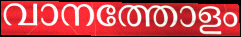
വാനത്തോളം